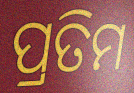
ପ୍ରତିମ